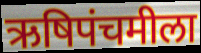
ऋषिपंचमीला